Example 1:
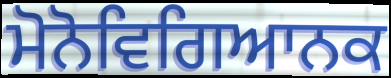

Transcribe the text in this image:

ਮੋਨੋਵਿਗਿਆਨਕ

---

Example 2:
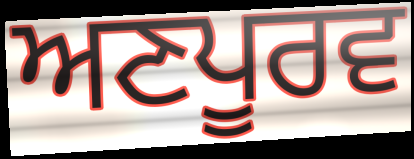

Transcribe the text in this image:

ਅਣਪੂਰਵ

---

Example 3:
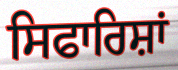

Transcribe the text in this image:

ਸਿਫਾਰਿਸ਼ਾਂ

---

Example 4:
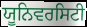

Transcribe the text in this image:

ਯੂਨਿਵਰਸਿਟੀ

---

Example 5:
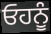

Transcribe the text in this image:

ਓਹਨੂੰ